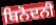
ਬਿਨੋਦਨੀ